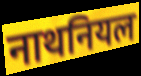
नाथनियल